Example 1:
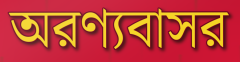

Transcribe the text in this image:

অরণ্যবাসর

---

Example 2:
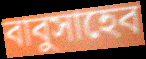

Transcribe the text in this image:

বাবুসাহেব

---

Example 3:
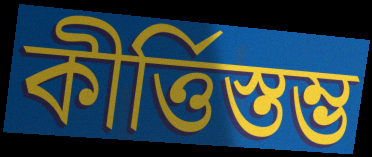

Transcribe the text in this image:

কীর্ত্তিস্তম্ভ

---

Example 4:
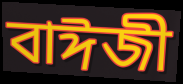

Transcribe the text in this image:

বাঈজী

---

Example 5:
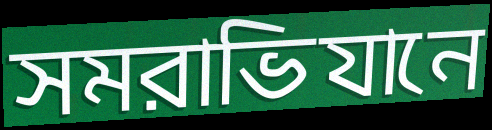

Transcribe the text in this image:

সমরাভিযানে